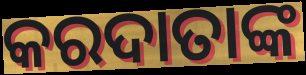
କରଦାତାଙ୍କ